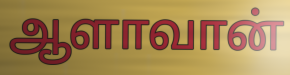
ஆளாவான்